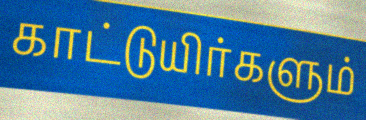
காட்டுயிர்களும்